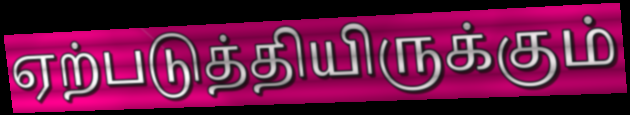
ஏற்படுத்தியிருக்கும்